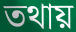
তথায়